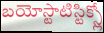
బయోస్టాటిస్టిక్స్లో